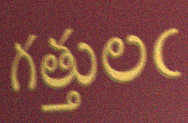
గత్తులఁ